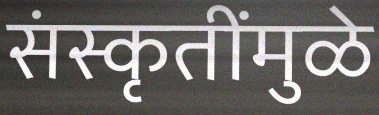
संस्कृतींमुळे